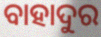
ବାହାଦୁର